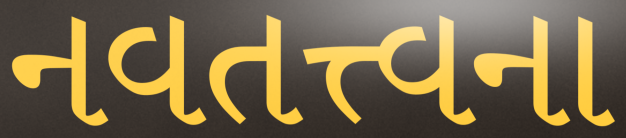
નવતત્ત્વના